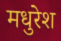
मधुरेश